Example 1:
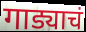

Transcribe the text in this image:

गाड्याचं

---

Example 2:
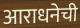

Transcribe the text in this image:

आराधनेची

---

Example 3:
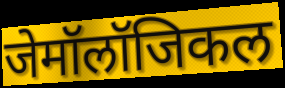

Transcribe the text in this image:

जेमॉलॉजिकल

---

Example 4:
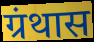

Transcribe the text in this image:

ग्रंथास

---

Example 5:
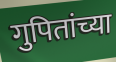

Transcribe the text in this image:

गुपितांच्या